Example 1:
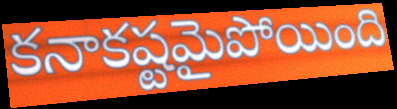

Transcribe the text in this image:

కనాకష్టమైపోయింది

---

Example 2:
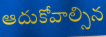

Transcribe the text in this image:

ఆదుకోవాల్సిన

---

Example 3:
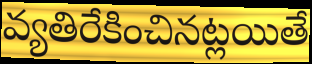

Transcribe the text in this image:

వ్యతిరేకించినట్లయితే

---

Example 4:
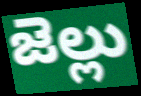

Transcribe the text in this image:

జెల్లు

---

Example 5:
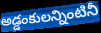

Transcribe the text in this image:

అడ్డంకులన్నింటినీ